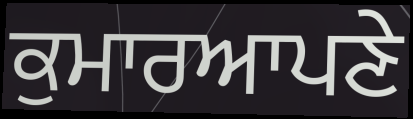
ਕੁਮਾਰਆਪਣੇ